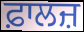
ਫ਼ਾਲਜ਼